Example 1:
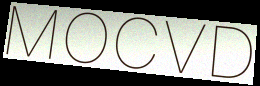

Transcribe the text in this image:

MOCVD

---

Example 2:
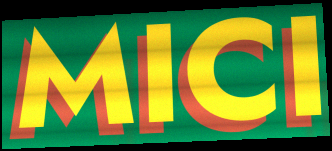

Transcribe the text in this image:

MICI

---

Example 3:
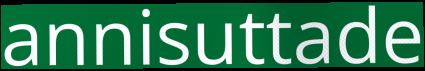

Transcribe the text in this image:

annisuttade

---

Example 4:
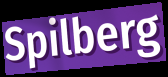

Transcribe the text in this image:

Spilberg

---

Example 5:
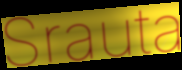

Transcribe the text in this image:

Srauta